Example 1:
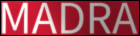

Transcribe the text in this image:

MADRA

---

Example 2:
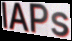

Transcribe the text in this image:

IAPs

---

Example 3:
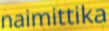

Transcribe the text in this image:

naimittika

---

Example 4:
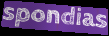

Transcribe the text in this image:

spondias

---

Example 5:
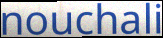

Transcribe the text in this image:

nouchali